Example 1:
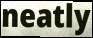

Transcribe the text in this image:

neatly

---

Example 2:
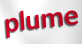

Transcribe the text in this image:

plume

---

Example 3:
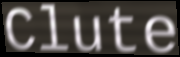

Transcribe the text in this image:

Clute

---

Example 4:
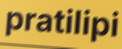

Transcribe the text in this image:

pratilipi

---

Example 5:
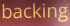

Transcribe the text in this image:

backing